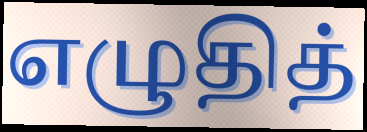
எழுதித்